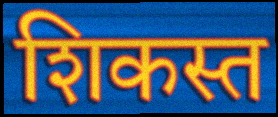
शिकस्त